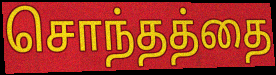
சொந்தத்தை